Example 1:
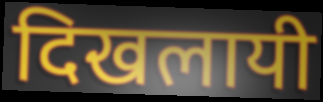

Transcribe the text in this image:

दिखलायी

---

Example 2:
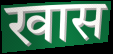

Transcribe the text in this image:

खास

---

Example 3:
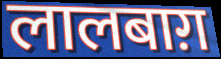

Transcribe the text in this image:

लालबाग़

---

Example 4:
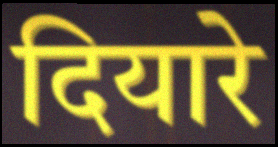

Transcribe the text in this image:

दियारे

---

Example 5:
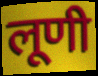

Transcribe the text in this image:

लूणी